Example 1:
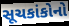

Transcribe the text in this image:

સૂચકાંકોનો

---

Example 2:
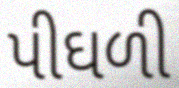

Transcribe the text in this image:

પીઘળી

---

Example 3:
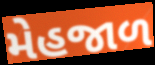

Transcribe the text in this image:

મેહજાળ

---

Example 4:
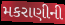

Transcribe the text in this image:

મકરાણીની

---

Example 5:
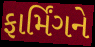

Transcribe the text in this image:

ફાર્મિંગને